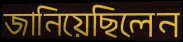
জানিয়েছিলেন